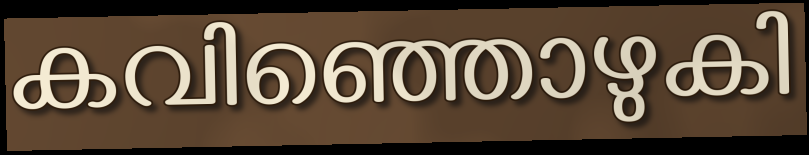
കവിഞ്ഞൊഴുകി